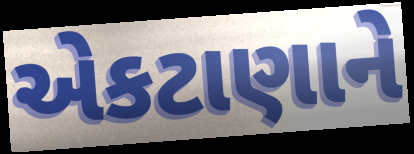
એકટાણાને